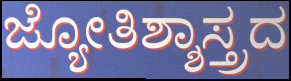
ಜ್ಯೋತಿಶ್ಶಾಸ್ತ್ರದ